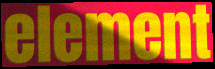
element